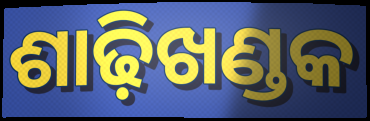
ଶାଢ଼ିଖଣ୍ଡକ